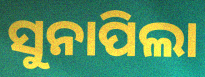
ସୁନାପିଲା